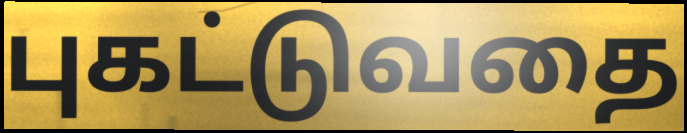
புகட்டுவதை